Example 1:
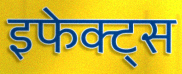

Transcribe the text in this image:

इफेक्ट्स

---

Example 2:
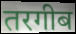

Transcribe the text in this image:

तरगीब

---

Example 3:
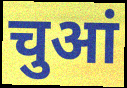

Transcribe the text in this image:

चुआं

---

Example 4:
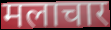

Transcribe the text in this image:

मलाचार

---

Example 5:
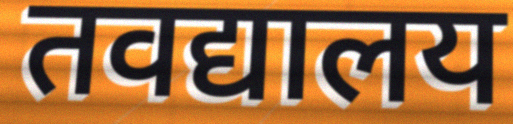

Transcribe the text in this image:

तवद्यालय